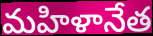
మహిళానేత